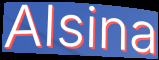
Alsina